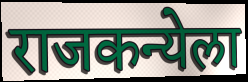
राजकन्येला